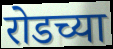
रोडच्या